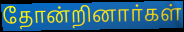
தோன்றினார்கள்